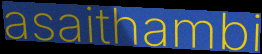
asaithambi